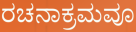
ರಚನಾಕ್ರಮವೂ